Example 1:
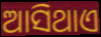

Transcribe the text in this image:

ଆସିଥାଏ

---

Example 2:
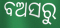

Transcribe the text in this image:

ବଅସରୁ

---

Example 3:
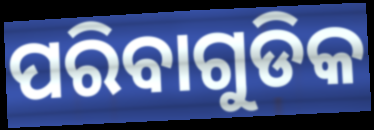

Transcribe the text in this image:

ପରିବାଗୁଡିକ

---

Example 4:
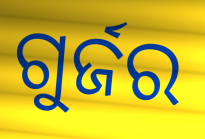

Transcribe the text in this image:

ଗୁର୍ଜର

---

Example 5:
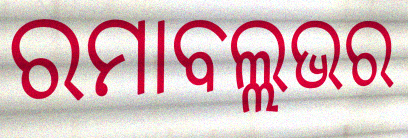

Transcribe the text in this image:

ରମାବଲ୍ଲଭର